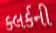
ક્લર્કની